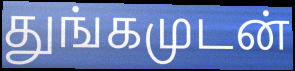
துங்கமுடன்